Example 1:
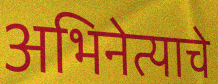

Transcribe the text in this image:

अभिनेत्याचे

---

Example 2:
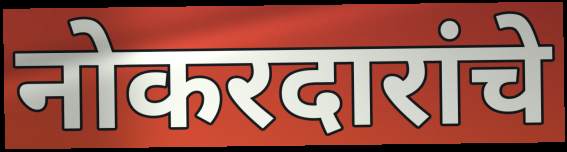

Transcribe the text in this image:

नोकरदारांचे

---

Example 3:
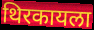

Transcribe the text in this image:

थिरकायला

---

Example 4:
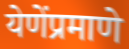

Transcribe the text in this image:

येणेंप्रमाणे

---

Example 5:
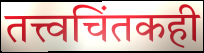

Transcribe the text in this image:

तत्त्वचिंतकही